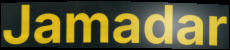
Jamadar